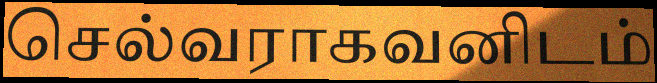
செல்வராகவனிடம்